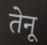
तेनू